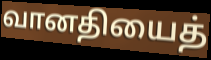
வானதியைத்